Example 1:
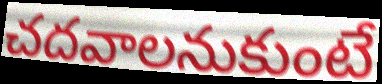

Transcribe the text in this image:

చదవాలనుకుంటే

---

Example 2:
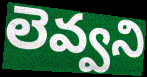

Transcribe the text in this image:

లెవ్వని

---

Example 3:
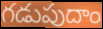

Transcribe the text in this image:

గడుపుదాం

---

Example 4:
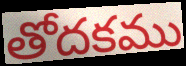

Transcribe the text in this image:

తోదకము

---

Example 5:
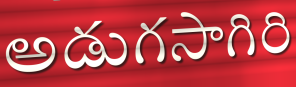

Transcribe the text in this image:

అడుగసాగిరి